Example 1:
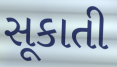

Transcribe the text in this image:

સૂકાતી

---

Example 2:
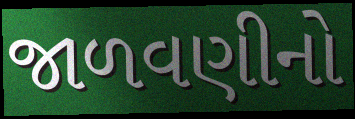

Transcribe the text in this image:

જાળવણીનો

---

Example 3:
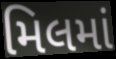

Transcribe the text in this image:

મિલમાં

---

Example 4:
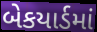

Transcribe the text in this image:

બેકયાર્ડમાં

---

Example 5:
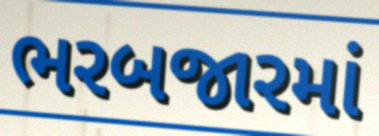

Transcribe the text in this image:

ભરબજારમાં